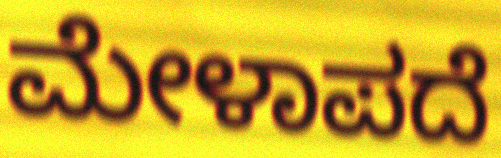
ಮೇಳಾಪದೆ